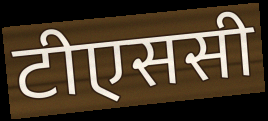
टीएससी